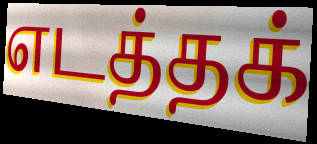
எடத்தக்